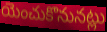
యెంచుకొనునట్లు